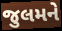
જુલમને